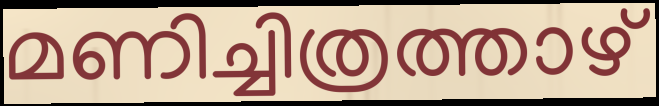
മണിച്ചിത്രത്താഴ്